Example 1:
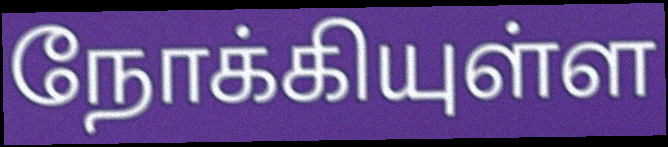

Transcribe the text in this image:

நோக்கியுள்ள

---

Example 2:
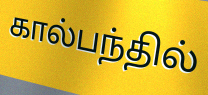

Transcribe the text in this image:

கால்பந்தில்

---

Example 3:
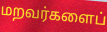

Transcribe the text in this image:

மறவர்களைப்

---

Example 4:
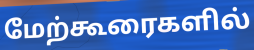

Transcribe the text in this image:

மேற்கூரைகளில்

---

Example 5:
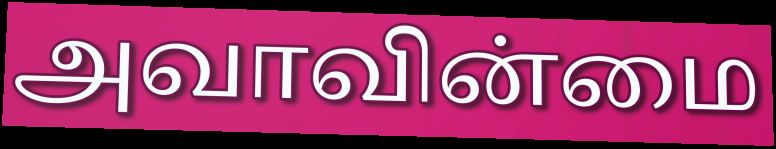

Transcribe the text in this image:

அவாவின்மை